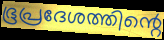
ഭൂപ്രദേശത്തിന്റെ